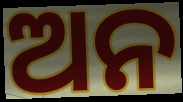
ଅନ